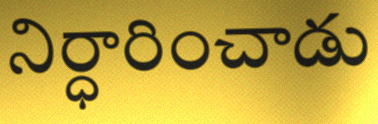
నిర్ధారించాడు